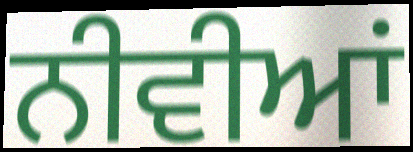
ਨੀਵੀਆਂ